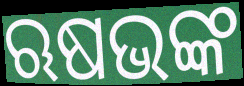
ଋଷଭଙ୍କ